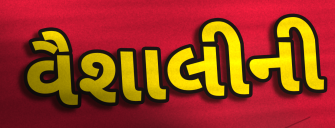
વૈશાલીની